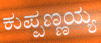
ಕುಪ್ಪಣ್ಣಯ್ಯ